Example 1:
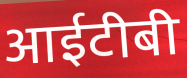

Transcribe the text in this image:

आईटीबी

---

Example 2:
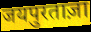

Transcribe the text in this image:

जयपुरताज़ा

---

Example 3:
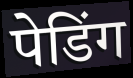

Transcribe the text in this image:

पेडिंग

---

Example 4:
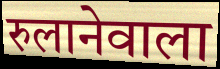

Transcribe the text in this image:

रुलानेवाला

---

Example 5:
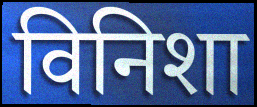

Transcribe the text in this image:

विनिशा